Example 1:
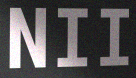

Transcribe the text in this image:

NII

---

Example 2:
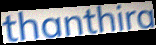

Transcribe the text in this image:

thanthira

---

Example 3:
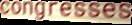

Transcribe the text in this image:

congresses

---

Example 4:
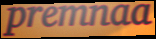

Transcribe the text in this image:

premnaa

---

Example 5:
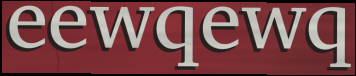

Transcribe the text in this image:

eewqewq